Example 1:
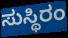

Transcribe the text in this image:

ಸುಸ್ಥಿರಂ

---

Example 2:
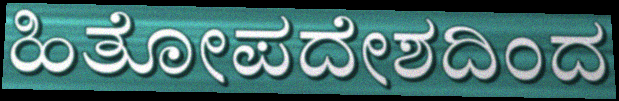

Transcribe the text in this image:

ಹಿತೋಪದೇಶದಿಂದ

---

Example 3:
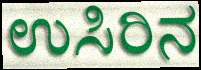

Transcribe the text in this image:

ಉಸಿರಿನ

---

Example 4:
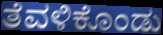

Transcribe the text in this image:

ತೆವಳಿಕೊಂಡು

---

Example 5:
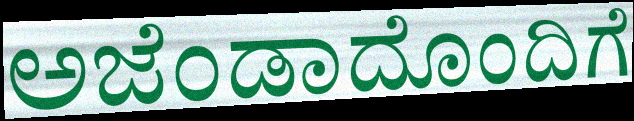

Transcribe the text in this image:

ಅಜೆಂಡಾದೊಂದಿಗೆ